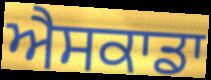
ਐਸਕਾਡਾ